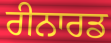
ਰੀਨਾਰਡ